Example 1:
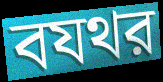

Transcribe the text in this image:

বযথর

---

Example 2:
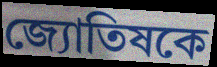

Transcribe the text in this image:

জ্যোতিষকে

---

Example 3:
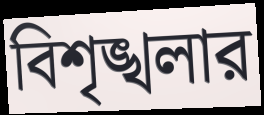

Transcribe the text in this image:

বিশৃঙ্খলার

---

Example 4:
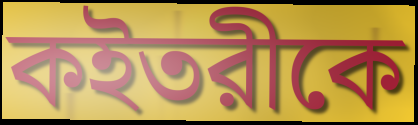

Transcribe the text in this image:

কইতরীকে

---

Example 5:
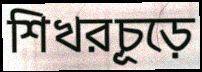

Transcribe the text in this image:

শিখরচূড়ে